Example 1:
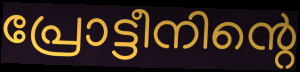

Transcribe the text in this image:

പ്രോട്ടീനിന്റെ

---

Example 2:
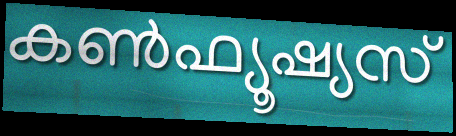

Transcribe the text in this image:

കൺഫ്യൂഷ്യസ്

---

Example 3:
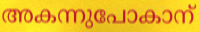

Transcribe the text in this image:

അകന്നുപോകാന്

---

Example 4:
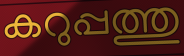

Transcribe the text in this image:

കറുപ്പത്തു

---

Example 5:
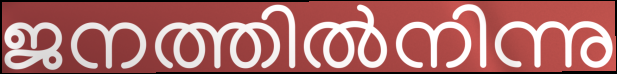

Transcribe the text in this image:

ജനത്തിൽനിന്നു